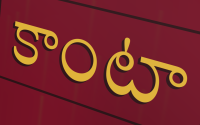
కాంటా